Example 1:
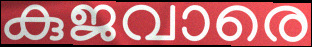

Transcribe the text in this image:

കുജവാരെ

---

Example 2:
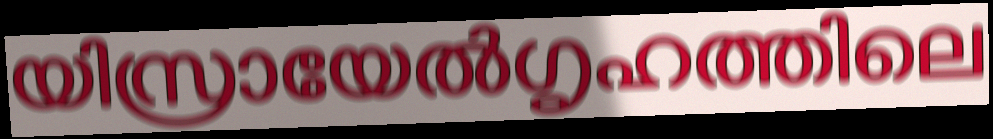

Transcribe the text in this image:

യിസ്രായേൽഗൃഹത്തിലെ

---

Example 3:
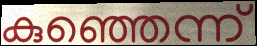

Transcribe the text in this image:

കുഞ്ഞെന്ന്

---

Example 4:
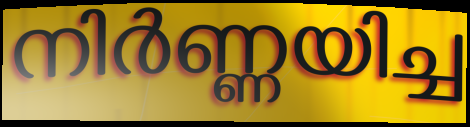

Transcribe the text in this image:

നിർണ്ണയിച്ച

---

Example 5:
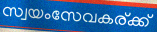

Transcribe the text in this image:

സ്വയംസേവകര്ക്ക്